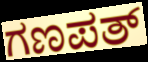
ಗಣಪತ್